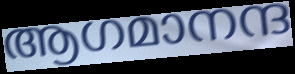
ആഗമാനന്ദ